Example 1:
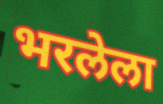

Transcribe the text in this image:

भरलेला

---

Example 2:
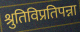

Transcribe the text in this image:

श्रुतिविप्रतिपन्ना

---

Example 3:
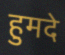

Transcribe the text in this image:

हुमदे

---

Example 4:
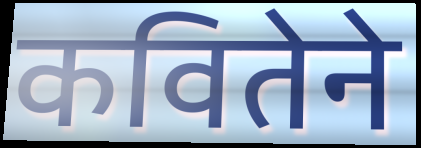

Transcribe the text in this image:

कवितेने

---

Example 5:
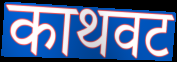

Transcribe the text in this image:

काथवट